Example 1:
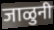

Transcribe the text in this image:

जाळुनी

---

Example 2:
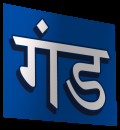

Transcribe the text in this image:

गंड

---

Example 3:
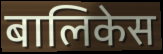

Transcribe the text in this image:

बालिकेस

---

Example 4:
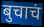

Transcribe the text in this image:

बुचाचं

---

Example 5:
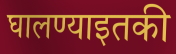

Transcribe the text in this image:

घालण्याइतकी